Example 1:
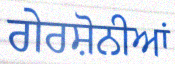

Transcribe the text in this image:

ਗੇਰਸ਼ੋਨੀਆਂ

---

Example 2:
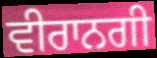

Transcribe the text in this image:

ਵੀਰਾਨਗੀ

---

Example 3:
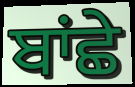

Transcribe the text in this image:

ਬਾਂਛੇ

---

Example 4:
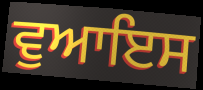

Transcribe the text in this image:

ਵੁਆਇਸ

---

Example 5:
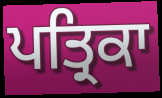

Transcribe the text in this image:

ਪਤ੍ਰਿਕਾ